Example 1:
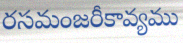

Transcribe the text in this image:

రసమంజరీకావ్యము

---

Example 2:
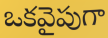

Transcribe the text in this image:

ఒకవైపుగా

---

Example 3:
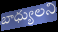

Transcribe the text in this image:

బాధ్యులని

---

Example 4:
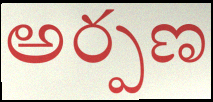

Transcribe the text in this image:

అర్పణ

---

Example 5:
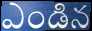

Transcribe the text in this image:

ఎండిన